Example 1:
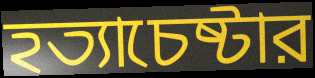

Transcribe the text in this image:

হত্যাচেষ্টার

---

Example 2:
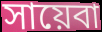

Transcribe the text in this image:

সায়েবা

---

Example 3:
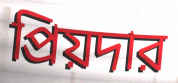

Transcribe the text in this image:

প্রিয়দার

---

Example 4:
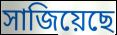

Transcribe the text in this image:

সাজিয়েছে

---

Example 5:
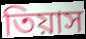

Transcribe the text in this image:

তিয়াস